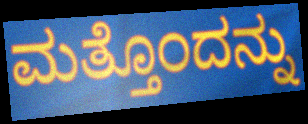
ಮತ್ತೊಂದನ್ನು